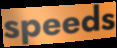
speeds